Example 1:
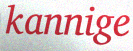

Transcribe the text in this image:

kannige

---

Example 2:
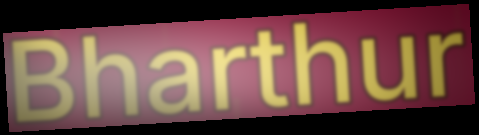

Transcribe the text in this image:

Bharthur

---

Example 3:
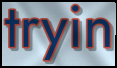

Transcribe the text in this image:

tryin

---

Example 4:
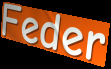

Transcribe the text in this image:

Feder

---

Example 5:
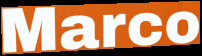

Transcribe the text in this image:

Marco